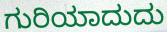
ಗುರಿಯಾದುದು